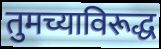
तुमच्याविरूद्ध